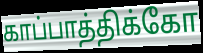
காப்பாத்திக்கோ